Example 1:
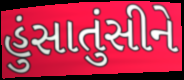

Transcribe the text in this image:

હુંસાતુંસીને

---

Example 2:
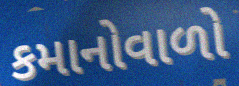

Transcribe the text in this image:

કમાનોવાળો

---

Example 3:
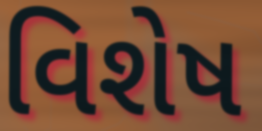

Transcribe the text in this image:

વિશેષ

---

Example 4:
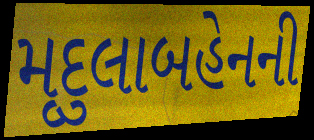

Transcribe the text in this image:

મૃદુલાબહેનની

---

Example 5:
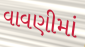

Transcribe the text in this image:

વાવણીમાં